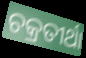
ଚକ୍ରତୀର୍ଥା